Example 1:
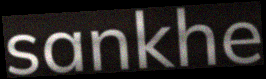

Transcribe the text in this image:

sankhe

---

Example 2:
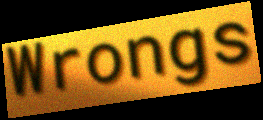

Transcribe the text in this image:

Wrongs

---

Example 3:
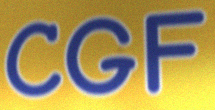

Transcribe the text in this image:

CGF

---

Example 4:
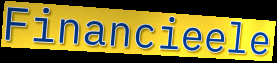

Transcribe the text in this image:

Financieele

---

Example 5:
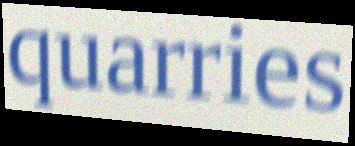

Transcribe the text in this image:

quarries